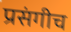
प्रसंगीच